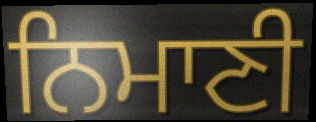
ਨਿਮਾਣੀ